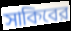
সাকিবের